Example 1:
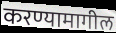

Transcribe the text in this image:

करण्यामागील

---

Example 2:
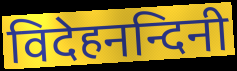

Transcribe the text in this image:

विदेहनन्दिनी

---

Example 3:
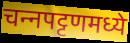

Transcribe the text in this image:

चन्नपट्टणमध्ये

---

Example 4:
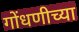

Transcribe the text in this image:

गोंधणीच्या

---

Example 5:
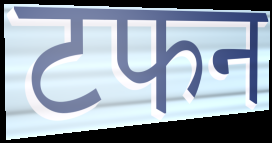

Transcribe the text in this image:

टफन